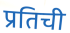
प्रतिची